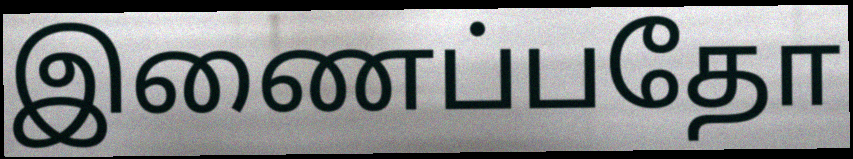
இணைப்பதோ